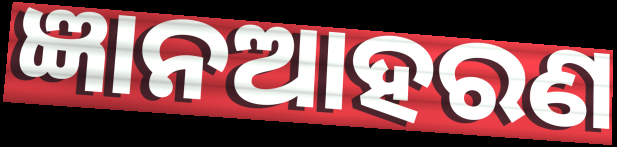
ଜ୍ଞାନଆହରଣ